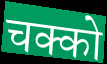
चक्को